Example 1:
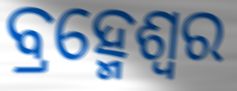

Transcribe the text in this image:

ବ୍ରହ୍ମେଶ୍ଵର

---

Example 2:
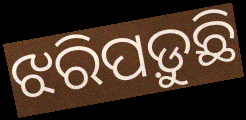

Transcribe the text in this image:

ଝରିପଡ଼ୁଛି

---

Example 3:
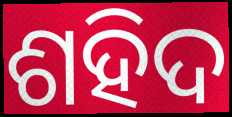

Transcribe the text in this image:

ଶହିଦ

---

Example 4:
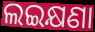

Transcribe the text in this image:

ଲଇକ୍ଷଣା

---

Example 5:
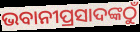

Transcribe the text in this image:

ଭବାନୀପ୍ରସାଦଙ୍କଠୁଁ